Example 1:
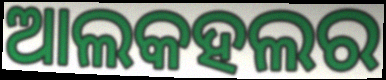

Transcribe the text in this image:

ଆଲକହଲର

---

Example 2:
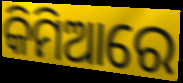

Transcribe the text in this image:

କିମିଆରେ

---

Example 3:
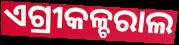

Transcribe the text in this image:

ଏଗ୍ରୀକଳ୍ଚରାଲ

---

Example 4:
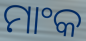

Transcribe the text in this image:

ମାଂକ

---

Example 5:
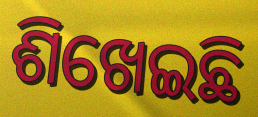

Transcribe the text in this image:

ଶିଖେଇଛି